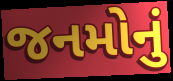
જનમોનું